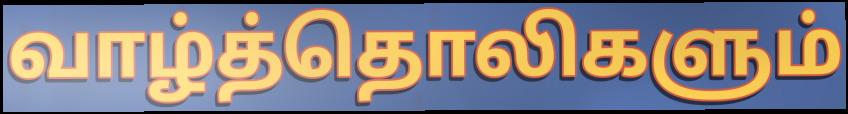
வாழ்த்தொலிகளும்